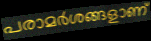
പരാമർശങ്ങളാണ്